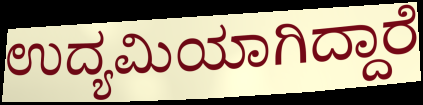
ಉದ್ಯಮಿಯಾಗಿದ್ದಾರೆ